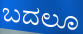
ಬದಲೂ